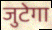
जुटेगा